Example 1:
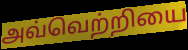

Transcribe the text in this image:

அவ்வெற்றியை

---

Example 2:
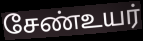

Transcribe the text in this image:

சேண்உயர்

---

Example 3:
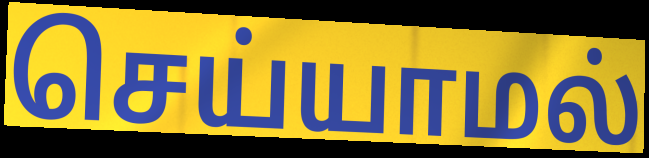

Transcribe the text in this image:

செய்யாமல்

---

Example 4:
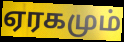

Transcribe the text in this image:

ஏரகமும்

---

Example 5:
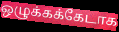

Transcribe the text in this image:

ஒழுக்கக்கேடாக